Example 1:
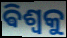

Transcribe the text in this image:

ଵିଶ୍ଵକୁ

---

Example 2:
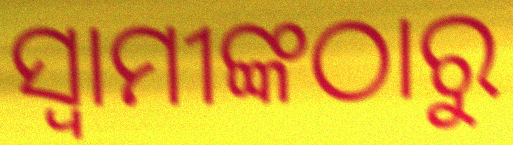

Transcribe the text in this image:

ସ୍ବାମୀଙ୍କଠାରୁ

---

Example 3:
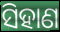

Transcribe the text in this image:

ସିହାଣ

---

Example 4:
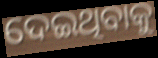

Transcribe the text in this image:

ଦେଇଥିବାକୁ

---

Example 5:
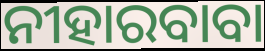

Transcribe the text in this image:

ନୀହାରବାବା